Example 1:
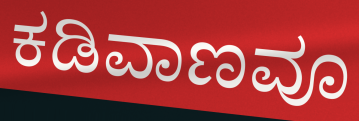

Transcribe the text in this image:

ಕಡಿವಾಣವೂ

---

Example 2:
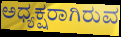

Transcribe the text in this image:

ಅಧ್ಯಕ್ಷರಾಗಿರುವ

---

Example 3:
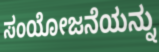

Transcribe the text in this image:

ಸಂಯೋಜನೆಯನ್ನು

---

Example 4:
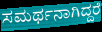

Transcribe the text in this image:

ಸಮರ್ಥನಾಗಿದ್ದರೆ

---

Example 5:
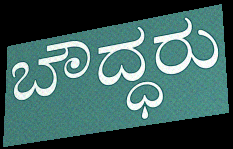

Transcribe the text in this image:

ಬೌದ್ಧರು